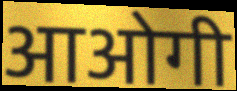
आओगी